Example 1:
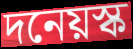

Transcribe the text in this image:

দনেয়স্ক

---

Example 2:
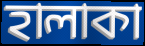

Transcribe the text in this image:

হালাকা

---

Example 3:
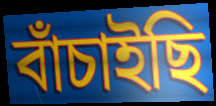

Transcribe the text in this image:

বাঁচাইছি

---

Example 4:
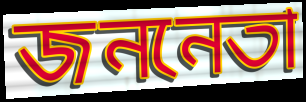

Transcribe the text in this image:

জননেতা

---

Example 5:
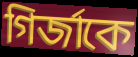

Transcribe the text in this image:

গির্জাকে